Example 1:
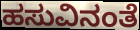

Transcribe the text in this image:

ಹಸುವಿನಂತೆ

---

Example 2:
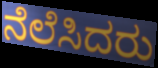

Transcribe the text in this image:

ನೆಲೆಸಿದರು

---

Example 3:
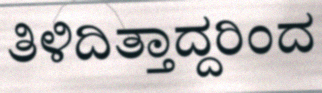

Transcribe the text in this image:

ತಿಳಿದಿತ್ತಾದ್ದರಿಂದ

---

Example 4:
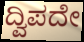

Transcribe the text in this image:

ದ್ವಿಪದೇ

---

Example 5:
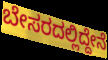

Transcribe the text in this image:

ಬೇಸರದಲ್ಲಿದ್ದೇನೆ